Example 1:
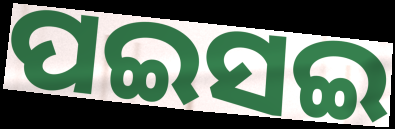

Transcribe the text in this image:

ପଇସଇ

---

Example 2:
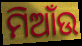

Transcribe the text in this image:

ମିଆଁଉ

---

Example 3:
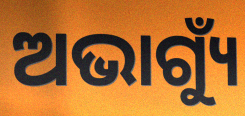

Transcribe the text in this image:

ଅଭାଗ୍ୟୁଁ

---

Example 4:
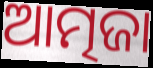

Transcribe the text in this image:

ଆତ୍ମଜା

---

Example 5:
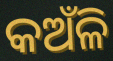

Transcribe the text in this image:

କଅଁଳି